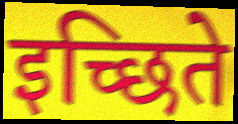
इच्छिते